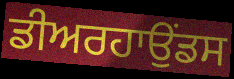
ਡੀਅਰਹਾਉਂਡਸ